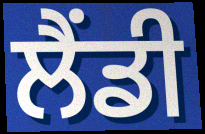
ਲੈਂਡੀ